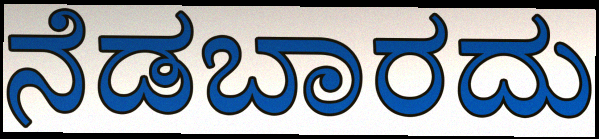
ನೆಡಬಾರದು